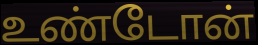
உண்டோன்